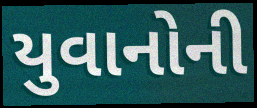
યુવાનોની